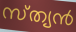
സ്‌ത്യൻ